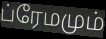
ப்ரேமமும்